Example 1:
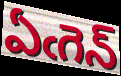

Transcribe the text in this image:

ఏఁగెన్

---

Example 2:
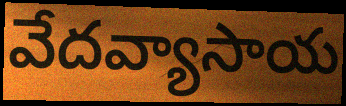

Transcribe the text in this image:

వేదవ్యాసాయ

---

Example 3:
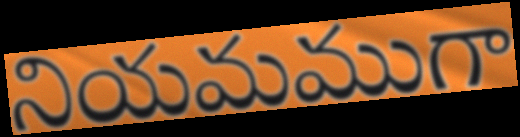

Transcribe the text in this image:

నియమముగా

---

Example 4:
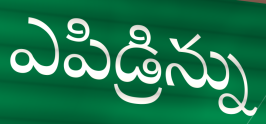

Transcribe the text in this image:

ఎపిడ్రిన్ను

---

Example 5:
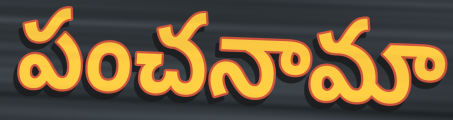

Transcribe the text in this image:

పంచనామా